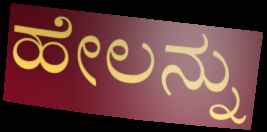
ಹೇಲನ್ನು